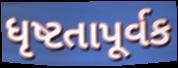
ધૃષ્ટતાપૂર્વક